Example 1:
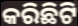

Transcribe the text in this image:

କରିଛିଟି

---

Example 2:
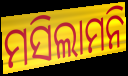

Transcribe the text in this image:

ମସିଲାମନି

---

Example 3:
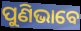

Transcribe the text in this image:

ପୁଣିଭାବେ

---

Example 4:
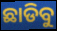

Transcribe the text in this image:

ଛାଡିବୁ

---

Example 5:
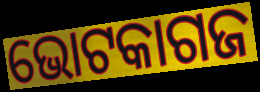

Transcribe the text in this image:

ଭୋଟକାଗଜ